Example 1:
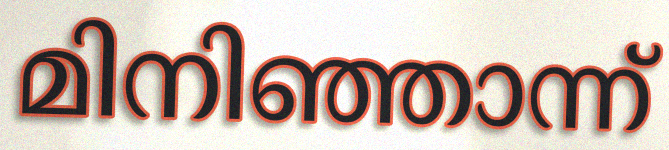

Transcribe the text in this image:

മിനിഞ്ഞാന്ന്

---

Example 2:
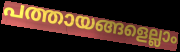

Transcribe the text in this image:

പത്തായങ്ങളെല്ലാം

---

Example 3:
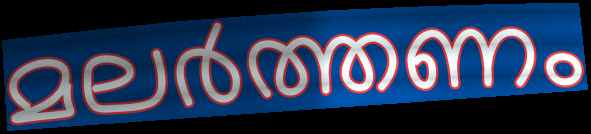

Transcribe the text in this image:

മലർത്തണം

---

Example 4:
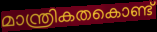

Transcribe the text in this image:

മാന്ത്രികതകൊണ്ട്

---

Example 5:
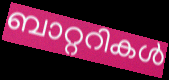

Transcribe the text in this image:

ബാറ്ററികൾ